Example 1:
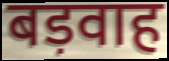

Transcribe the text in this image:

बड़वाह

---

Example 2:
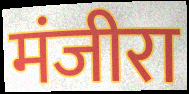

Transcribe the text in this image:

मंजीरा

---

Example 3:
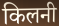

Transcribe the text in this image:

किलनी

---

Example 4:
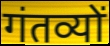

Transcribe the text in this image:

गंतव्यों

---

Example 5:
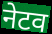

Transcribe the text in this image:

नेटव